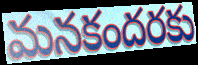
మనకందరకు